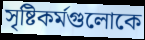
সৃষ্টিকর্মগুলোকে